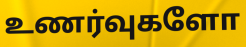
உணர்வுகளோ